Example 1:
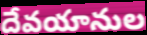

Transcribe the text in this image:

దేవయానుల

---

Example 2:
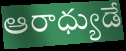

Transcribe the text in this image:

ఆరాధ్యుడే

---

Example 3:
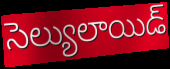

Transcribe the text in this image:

సెల్యులాయిడ్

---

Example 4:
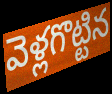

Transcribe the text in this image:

వెళ్లగొట్టిన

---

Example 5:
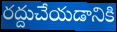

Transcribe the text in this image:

రద్దుచేయడానికి